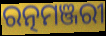
ରତ୍ନମଞ୍ଜରୀ